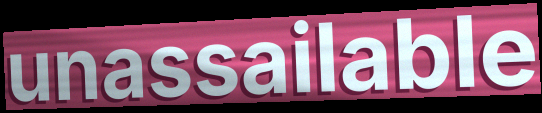
unassailable